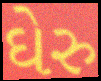
ઘેરુ